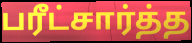
பரீட்சார்த்த